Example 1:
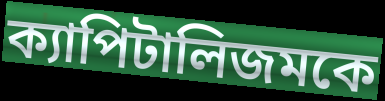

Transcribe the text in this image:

ক্যাপিটালিজমকে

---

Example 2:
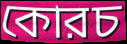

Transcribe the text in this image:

কোরচ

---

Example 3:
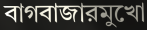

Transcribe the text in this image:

বাগবাজারমুখো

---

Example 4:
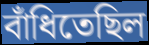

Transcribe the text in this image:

বাঁধিতেছিল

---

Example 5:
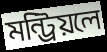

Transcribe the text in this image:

মন্ট্রিয়লে